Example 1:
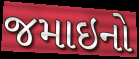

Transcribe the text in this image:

જમાઇનો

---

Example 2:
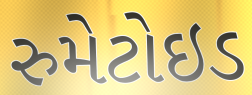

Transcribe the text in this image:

રુમેટોઇડ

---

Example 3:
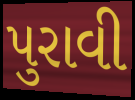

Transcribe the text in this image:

પુરાવી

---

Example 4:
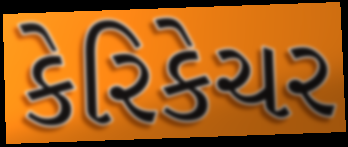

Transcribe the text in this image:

કેરિકેચર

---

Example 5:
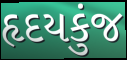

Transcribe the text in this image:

હૃદયકુંજ